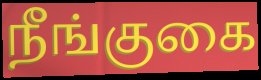
நீங்குகை